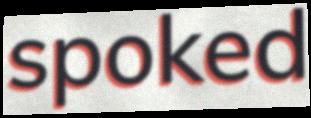
spoked